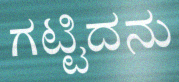
ಗಟ್ಟಿದನು